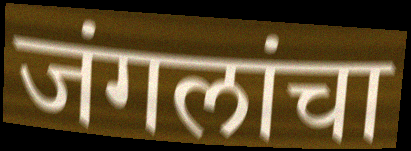
जंगलांचा